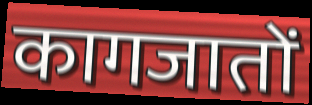
कागजातों